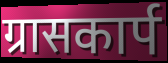
ग्रासकार्प